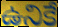
ఉనికే